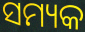
ସମ୍ୟକ